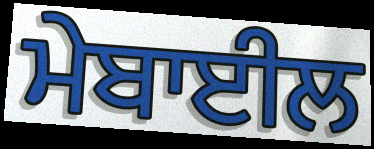
ਮੇਬਾਈਲ